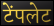
टेंपलेट